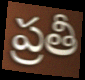
ప్రతీ